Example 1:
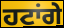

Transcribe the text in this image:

ਹਟਾਂਗੇ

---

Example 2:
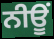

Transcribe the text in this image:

ਨੀਊਂ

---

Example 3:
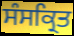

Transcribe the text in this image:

ਸੰਸਕ੍ਰਿਤ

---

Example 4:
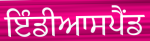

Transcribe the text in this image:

ਇੰਡੀਆਸਪੈਂਡ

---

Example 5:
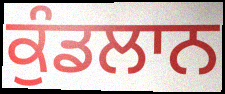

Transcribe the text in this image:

ਕੁੰਡਲਾਨ